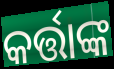
କର୍ତ୍ତାଙ୍କ